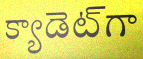
క్యాడెట్‌గా